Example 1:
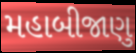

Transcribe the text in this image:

મહાબીજાણુ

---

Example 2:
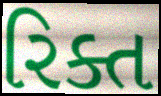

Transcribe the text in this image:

રિક્ત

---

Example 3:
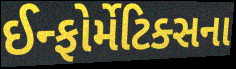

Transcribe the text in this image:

ઈન્ફોર્મેટિક્સના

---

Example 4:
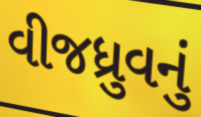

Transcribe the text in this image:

વીજધ્રુવનું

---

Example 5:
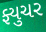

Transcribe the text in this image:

ફ્યુચર